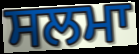
ਸਲਮਾ